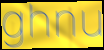
ghnu